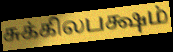
சுக்கிலபக்ஷம்